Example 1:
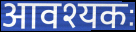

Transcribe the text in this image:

आवश्यकः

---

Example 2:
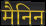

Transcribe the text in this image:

मैनिन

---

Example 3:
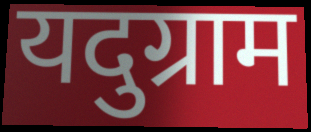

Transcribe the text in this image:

यदुग्राम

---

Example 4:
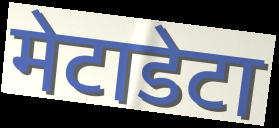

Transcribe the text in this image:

मेटाडेटा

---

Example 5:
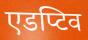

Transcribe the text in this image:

एडप्टिव